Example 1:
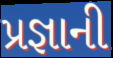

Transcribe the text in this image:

પ્રજ્ઞાની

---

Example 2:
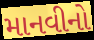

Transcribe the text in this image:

માનવીનો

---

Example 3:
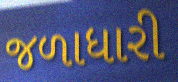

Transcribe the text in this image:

જળાધારી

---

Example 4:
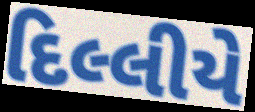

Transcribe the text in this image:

દિલ્લીયે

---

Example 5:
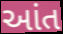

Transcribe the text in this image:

આંત